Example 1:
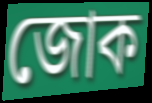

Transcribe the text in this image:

জোক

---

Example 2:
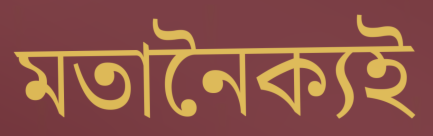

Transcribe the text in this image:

মতানৈক্যই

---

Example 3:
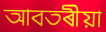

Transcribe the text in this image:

আবতৰীয়া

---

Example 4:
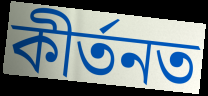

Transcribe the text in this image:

কীৰ্তনত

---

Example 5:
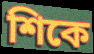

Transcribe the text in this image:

শিকে